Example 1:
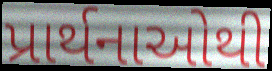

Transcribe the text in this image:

પ્રાર્થનાઓથી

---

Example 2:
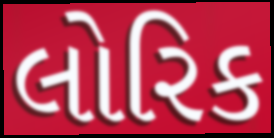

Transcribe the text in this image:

લોરિક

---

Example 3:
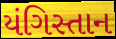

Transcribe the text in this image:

યંગિસ્તાન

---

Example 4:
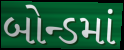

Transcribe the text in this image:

બોન્ડમાં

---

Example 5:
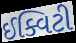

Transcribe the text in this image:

ઈક્વિટી